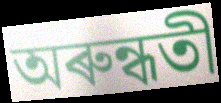
অৰুন্ধতী